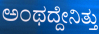
ಅಂಥದ್ದೇನಿತ್ತು